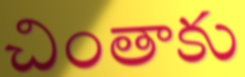
చింతాకు